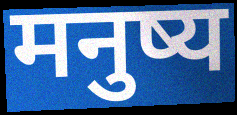
मनुष्य